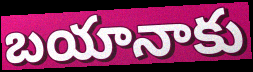
బయానాకు